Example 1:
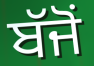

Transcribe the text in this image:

ਬੱਜੋਂ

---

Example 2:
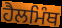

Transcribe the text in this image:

ਹੈਲਮਿੰਥ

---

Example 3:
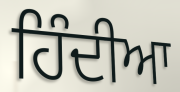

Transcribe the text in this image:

ਹਿੰਦੀਆ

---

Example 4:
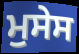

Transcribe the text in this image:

ਮੁਸੇਸ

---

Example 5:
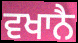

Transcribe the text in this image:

ਵਖਾਨੈ